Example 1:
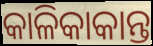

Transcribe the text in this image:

କାଳିକାକାନ୍ତ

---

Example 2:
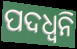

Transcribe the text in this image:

ପଦଧ୍ୱନି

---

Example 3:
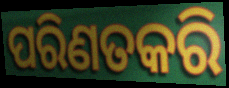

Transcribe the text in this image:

ପରିଣତକରି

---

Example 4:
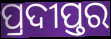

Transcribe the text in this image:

ପ୍ରଦୀପ୍ତର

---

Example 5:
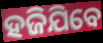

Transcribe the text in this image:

ହଜିଯିବେ